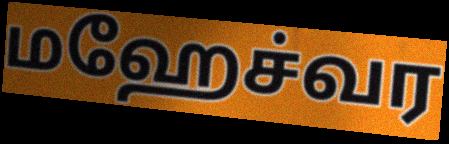
மஹேச்வர